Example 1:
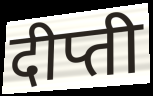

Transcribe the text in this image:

दीप्ती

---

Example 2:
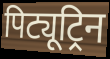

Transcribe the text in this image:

पिट्यूट्रिन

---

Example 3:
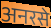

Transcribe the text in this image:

अनरसे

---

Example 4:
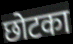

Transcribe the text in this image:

छोटका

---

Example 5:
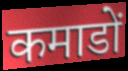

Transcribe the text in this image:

कमाडों